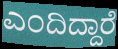
ಎಂದಿದ್ದಾರೆ